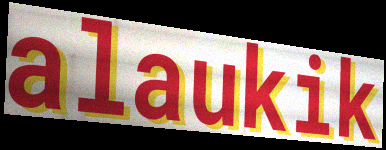
alaukik